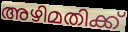
അഴിമതിക്ക്